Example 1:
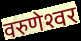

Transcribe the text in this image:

वरुणेश्वर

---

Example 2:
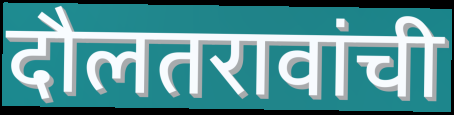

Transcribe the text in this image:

दौलतरावांची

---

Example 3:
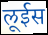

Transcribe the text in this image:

लूईस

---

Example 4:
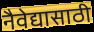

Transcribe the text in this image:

नैवेद्यासाठी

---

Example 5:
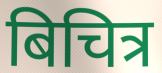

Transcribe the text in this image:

बिचित्र